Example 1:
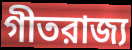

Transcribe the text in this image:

গীতরাজ্য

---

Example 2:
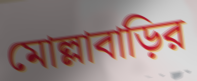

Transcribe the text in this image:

মোল্লাবাড়ির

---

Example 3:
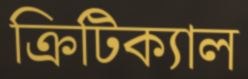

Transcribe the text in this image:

ক্রিটিক্যাল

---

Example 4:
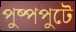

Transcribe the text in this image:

পুষ্পপুটে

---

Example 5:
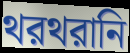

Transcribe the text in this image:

থরথরানি